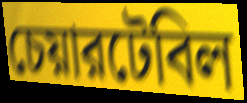
চেয়ারটেবিল